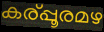
കര്പ്പൂരമഴ